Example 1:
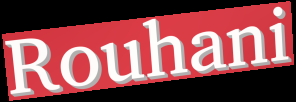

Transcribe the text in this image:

Rouhani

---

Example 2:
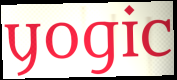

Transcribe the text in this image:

yogic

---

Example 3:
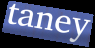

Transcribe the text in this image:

taney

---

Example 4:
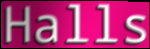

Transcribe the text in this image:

Halls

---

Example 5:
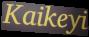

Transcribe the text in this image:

Kaikeyi